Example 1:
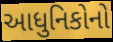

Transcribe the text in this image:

આધુનિકોનો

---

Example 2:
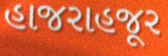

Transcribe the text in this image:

હાજરાહજૂર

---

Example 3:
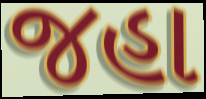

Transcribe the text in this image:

જહા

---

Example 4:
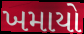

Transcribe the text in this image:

ખમાયો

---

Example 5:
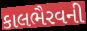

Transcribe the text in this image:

કાલભૈરવની